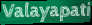
Valayapati